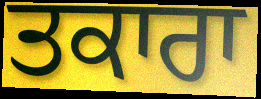
ਤਕਾਰਾ